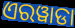
ଏରୱାଡା